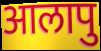
आलापु